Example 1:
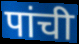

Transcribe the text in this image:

पांची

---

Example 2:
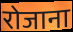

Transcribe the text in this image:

रोजाना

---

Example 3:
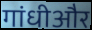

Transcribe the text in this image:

गांधीऔर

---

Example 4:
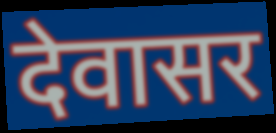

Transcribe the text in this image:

देवासर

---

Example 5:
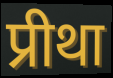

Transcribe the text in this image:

प्रीथा